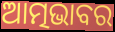
ଆତ୍ମଭାବର